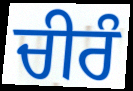
ਚੀਰੰ